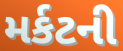
મર્કટની